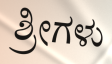
ಶ್ರೀಗಳು